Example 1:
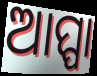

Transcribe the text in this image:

ଆପ୍ପା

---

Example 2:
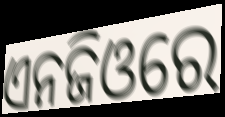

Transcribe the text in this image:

ଏନଜିଓରେ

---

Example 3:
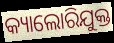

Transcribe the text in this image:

କ୍ୟାଲୋରିଯୁକ୍ତ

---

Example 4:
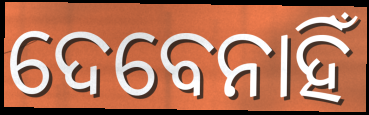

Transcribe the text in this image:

ଦେବେନାହିଁ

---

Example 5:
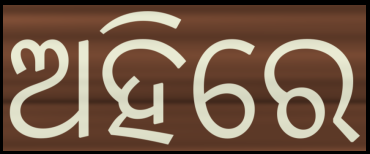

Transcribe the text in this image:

ଅହିରେ